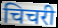
चिचरी